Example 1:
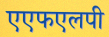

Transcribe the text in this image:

एएफएलपी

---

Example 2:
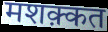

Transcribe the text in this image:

मशक़्कत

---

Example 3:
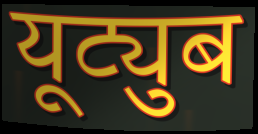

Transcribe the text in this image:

यूट्युब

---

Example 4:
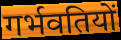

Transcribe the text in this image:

गर्भवतियों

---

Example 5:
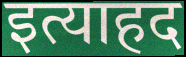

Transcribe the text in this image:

इत्याहद